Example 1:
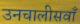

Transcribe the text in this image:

उनचालीसवाँ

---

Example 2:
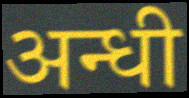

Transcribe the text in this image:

अन्धी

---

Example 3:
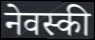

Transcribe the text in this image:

नेवस्की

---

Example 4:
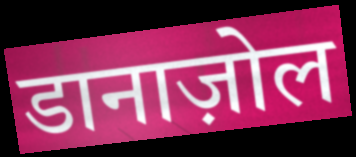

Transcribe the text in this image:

डानाज़ोल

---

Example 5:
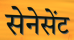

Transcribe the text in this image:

सेनेसेंट